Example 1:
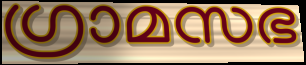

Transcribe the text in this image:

ഗ്രാമസഭ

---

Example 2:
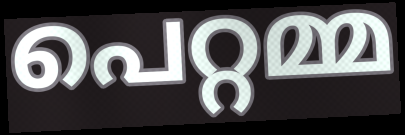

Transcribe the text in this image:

പെറ്റമ്മ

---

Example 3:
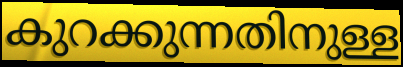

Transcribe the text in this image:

കുറക്കുന്നതിനുള്ള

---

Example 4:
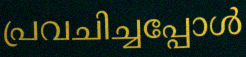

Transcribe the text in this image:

പ്രവചിച്ചപ്പോൾ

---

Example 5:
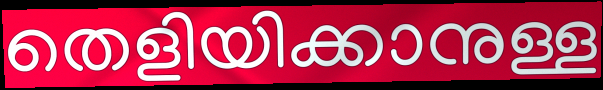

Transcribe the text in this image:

തെളിയിക്കാനുള്ള